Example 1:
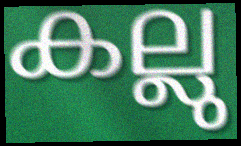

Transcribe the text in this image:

കല്ലു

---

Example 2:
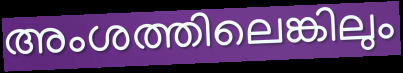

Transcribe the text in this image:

അംശത്തിലെങ്കിലും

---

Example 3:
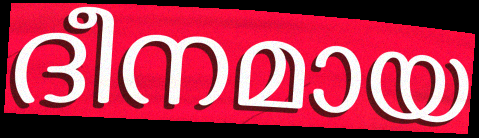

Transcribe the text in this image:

ദീനമായ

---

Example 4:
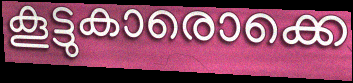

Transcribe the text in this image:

കൂട്ടുകാരൊക്കെ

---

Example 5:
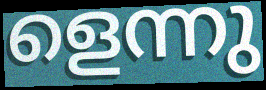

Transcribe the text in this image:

ളെന്നു